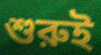
শুরুই